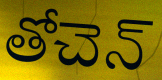
తోచెన్